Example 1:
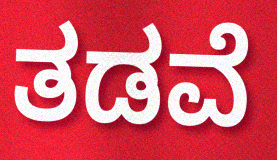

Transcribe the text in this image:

ತಡವೆ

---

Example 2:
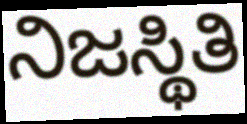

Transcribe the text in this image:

ನಿಜಸ್ಥಿತಿ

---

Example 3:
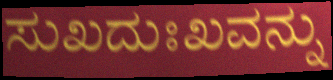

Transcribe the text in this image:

ಸುಖದುಃಖವನ್ನು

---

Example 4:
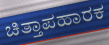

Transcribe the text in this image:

ಚಿತ್ತಾಪಹಾರಕ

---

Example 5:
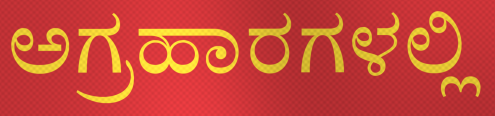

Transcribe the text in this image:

ಅಗ್ರಹಾರಗಳಲ್ಲಿ